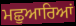
ਮਛੁਆਰਿਆਂ